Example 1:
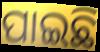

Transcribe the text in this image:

ପାଇଛି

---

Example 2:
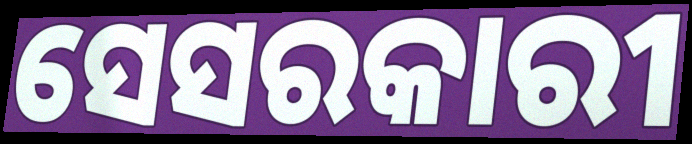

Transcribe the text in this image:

ସେସରକାରୀ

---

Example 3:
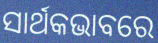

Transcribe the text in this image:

ସାର୍ଥକଭାବରେ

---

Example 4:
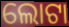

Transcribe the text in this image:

ଲୋଟା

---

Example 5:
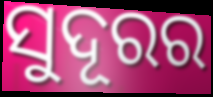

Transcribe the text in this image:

ସୁଦୂରର